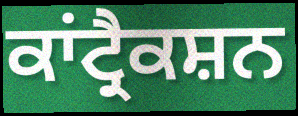
ਕਾਂਟ੍ਰੈਕਸ਼ਨ